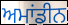
ਅਮਾਂਡੀਨ